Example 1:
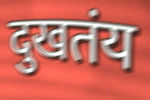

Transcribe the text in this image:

दुखतंय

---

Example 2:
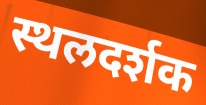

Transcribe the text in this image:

स्थलदर्शक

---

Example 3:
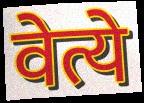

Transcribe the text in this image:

वेत्ये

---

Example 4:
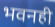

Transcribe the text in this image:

भवनही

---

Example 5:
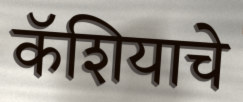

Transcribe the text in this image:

कॅशियाचे